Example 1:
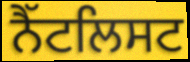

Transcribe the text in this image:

ਨੈੱਟਲਿਸਟ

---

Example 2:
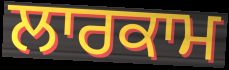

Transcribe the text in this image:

ਲਾਰਕਾਮ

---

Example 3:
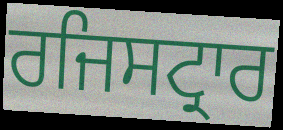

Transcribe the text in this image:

ਰਜਿਸਟ੍ਰਾਰ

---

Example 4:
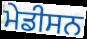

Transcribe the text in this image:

ਮੇਡੀਸਨ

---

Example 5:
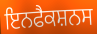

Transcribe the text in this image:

ਇਨਫੈਕਸ਼ਨਸ